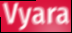
Vyara